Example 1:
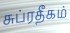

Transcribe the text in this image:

சுப்ரதீகம்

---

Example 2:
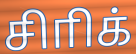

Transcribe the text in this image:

சிரிக்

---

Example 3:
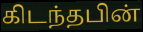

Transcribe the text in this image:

கிடந்தபின்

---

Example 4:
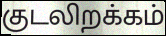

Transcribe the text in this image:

குடலிறக்கம்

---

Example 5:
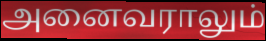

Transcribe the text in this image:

அனைவராலும்